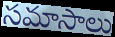
సమాసాలు